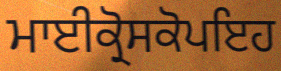
ਮਾਈਕ੍ਰੋਸਕੋਪਇਹ